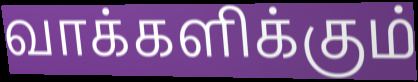
வாக்களிக்கும்